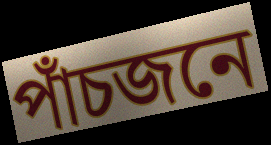
পাঁচজনে